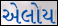
એલોય